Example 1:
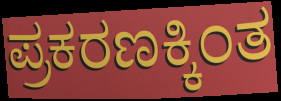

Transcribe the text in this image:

ಪ್ರಕರಣಕ್ಕಿಂತ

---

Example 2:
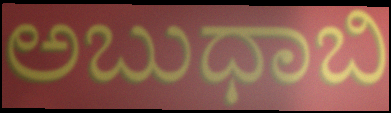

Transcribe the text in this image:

ಅಬುಧಾಬಿ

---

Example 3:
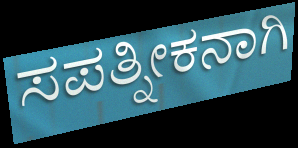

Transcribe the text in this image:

ಸಪತ್ನೀಕನಾಗಿ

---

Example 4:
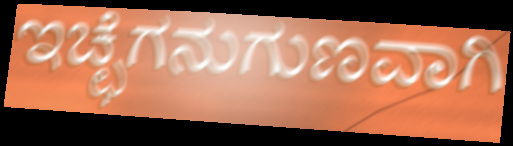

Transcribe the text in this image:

ಇಚ್ಛೆಗನುಗುಣವಾಗಿ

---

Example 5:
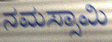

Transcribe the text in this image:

ನಮಸ್ಸಾಮಿ